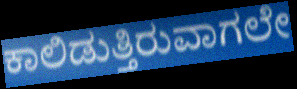
ಕಾಲಿಡುತ್ತಿರುವಾಗಲೇ